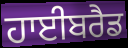
ਹਾਈਬਰੈਡ